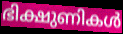
ഭിക്ഷുണികൾ